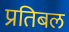
प्रतिबल